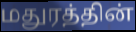
மதுரத்தின்